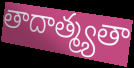
తాదాత్మ్యతా